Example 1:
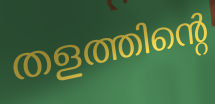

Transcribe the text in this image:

തളത്തിന്റെ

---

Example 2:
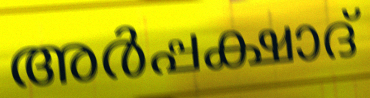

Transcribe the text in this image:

അർപ്പക്ഷാദ്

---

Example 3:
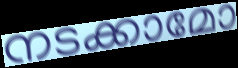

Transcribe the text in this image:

നടക്കാമോ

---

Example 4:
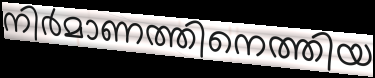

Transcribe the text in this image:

നിർമാണത്തിനെത്തിയ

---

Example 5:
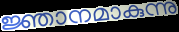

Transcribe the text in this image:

ജ്ഞാനമാകുന്നു